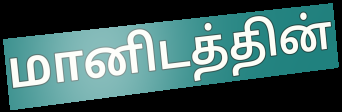
மானிடத்தின்